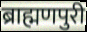
ब्राह्मणपुरी